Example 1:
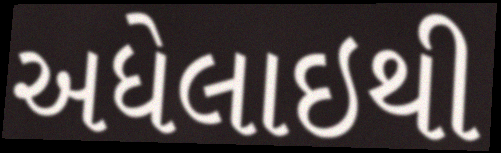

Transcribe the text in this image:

અધેલાઇથી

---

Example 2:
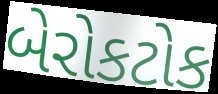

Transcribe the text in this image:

બેરોકટોક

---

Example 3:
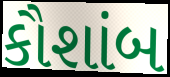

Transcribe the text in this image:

કૌશાંબ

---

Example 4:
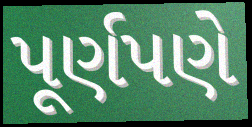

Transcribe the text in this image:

પૂર્ણપણે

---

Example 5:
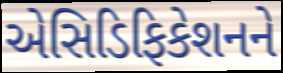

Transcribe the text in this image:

એસિડિફિકેશનને